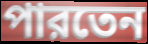
পারতেন